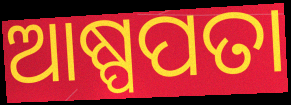
ଆଷ୍ପପତା